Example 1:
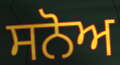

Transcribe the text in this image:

ਸਨੋਅ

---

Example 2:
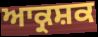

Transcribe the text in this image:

ਆਕ੍ਰਸ਼ਕ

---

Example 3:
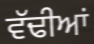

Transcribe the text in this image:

ਵੱਢੀਆਂ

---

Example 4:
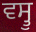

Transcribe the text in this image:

ਵਸ੍ਤੁ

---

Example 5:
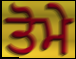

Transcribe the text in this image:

ਤੋਮੇ